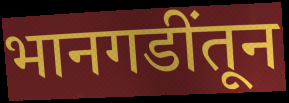
भानगडींतून